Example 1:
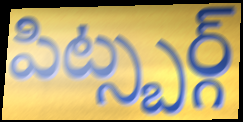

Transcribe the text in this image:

పిట్స్బర్గ్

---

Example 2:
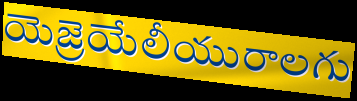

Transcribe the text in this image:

యెజ్రెయేలీయురాలగు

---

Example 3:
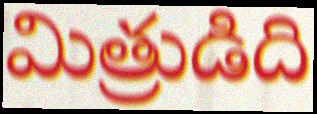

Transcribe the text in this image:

మిత్రుడిది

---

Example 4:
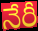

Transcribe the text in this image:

నేరీ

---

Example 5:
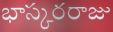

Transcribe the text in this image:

భాస్కరరాజు